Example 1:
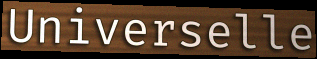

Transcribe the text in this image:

Universelle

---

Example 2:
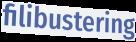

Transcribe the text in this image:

filibustering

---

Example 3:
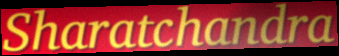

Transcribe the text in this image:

Sharatchandra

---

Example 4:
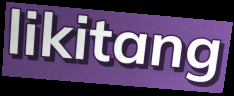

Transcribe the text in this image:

likitang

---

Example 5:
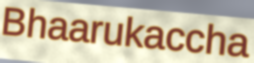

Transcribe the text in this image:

Bhaarukaccha